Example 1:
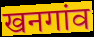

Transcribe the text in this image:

खनगांव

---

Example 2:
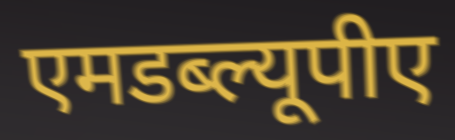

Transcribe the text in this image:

एमडब्ल्यूपीए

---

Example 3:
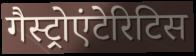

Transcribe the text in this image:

गैस्ट्रोएंटेरिटिस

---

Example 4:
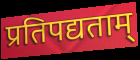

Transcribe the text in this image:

प्रतिपद्यताम्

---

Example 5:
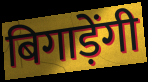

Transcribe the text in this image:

बिगाड़ेंगी